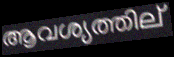
ആവശ്യത്തില്